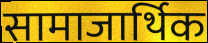
सामाजार्थिक